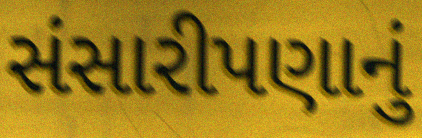
સંસારીપણાનું